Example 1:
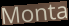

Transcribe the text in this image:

Monta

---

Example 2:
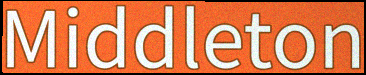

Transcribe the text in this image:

Middleton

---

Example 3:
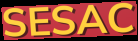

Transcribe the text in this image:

SESAC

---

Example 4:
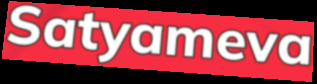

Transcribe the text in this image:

Satyameva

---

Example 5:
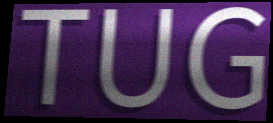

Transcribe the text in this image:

TUG